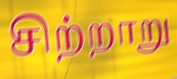
சிற்றாறு